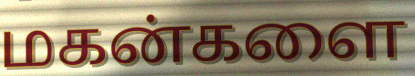
மகன்களை